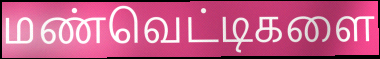
மண்வெட்டிகளை